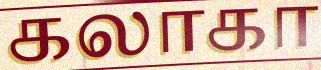
கலாகா